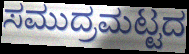
ಸಮುದ್ರಮಟ್ಟದ